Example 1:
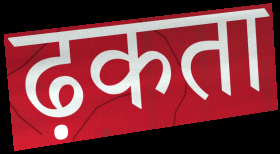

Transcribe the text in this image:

ढ़कता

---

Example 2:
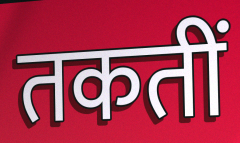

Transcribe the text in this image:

तकतीं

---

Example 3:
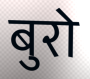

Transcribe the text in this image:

बुरो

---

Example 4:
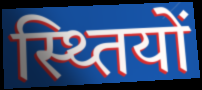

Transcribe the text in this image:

स्थ्तियों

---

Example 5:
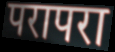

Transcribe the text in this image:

परापरा